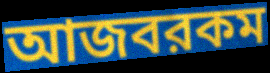
আজবরকম